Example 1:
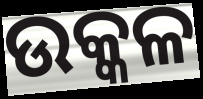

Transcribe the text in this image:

ଉକ୍କଳ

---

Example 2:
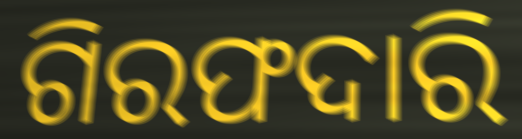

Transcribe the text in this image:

ଗିରଫଦାରି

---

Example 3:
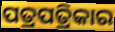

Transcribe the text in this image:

ପତ୍ରପତ୍ରିକାର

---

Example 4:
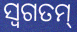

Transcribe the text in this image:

ସ୍ୱଗତମ୍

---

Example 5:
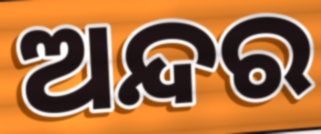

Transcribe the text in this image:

ଅନ୍ଦର